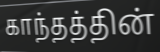
காந்தத்தின்